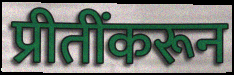
प्रीतींकरून